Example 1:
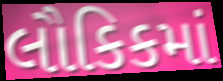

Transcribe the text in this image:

લૌકિકમાં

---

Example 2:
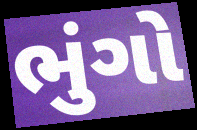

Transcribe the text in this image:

ભુંગો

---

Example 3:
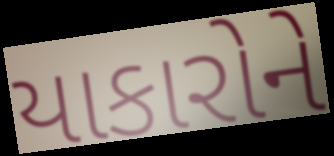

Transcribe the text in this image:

યાકારોને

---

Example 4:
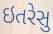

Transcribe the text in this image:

ઇતરેસુ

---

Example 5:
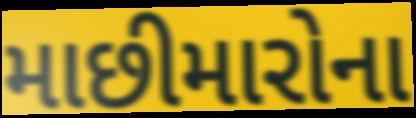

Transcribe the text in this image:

માછીમારોના